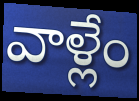
వాళ్లేం